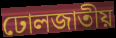
ঢোলজাতীয়